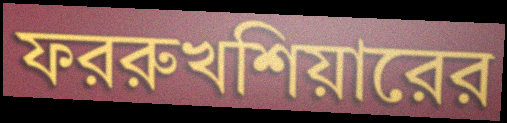
ফররুখশিয়ারের